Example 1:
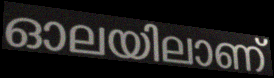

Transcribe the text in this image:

ഓലയിലാണ്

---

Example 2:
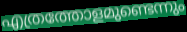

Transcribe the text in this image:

എത്രത്തോളമുണ്ടെന്നും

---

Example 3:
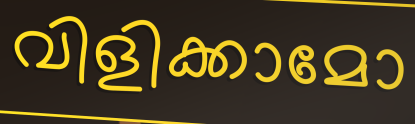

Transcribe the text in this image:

വിളിക്കാമോ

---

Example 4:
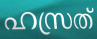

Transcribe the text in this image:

ഹസ്രത്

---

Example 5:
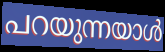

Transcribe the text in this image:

പറയുന്നയാൾ